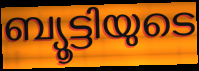
ബ്യൂട്ടിയുടെ